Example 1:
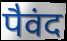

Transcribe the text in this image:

पैवंद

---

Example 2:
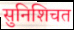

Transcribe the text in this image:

सुनिशिचत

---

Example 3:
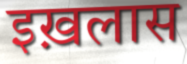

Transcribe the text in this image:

इख़लास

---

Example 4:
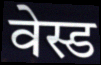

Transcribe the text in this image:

वेस्ड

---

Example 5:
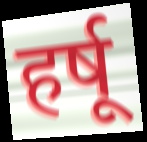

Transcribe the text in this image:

हर्षू